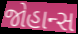
જોહાન્સ